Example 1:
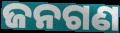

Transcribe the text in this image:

ଜନଗଣ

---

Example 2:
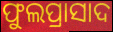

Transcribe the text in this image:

ଫୁଲପ୍ରାସାଦ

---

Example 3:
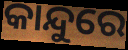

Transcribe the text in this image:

କାନ୍ଦୁରେ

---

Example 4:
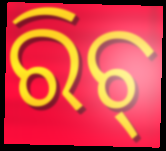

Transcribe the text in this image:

ରିଚ୍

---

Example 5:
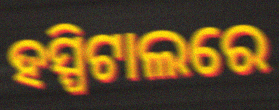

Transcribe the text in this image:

ହସ୍ପିଟାଲରେ